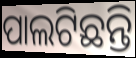
ପାଲଟିଛନ୍ତି